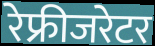
रेफ्रीजरेटर